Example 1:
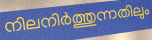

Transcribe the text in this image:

നിലനിർത്തുന്നതിലും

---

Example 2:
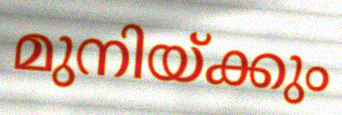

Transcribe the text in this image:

മുനിയ്ക്കും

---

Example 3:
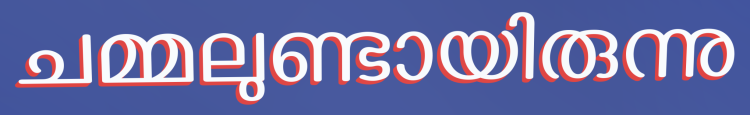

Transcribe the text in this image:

ചമ്മലുണ്ടായിരുന്നു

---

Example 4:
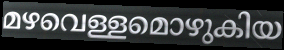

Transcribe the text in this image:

മഴവെള്ളമൊഴുകിയ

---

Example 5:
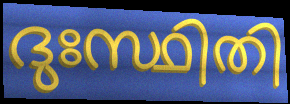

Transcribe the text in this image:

ദുഃസ്ഥിതി